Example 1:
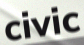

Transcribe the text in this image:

civic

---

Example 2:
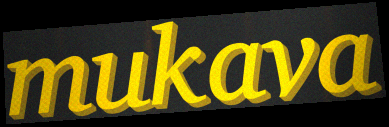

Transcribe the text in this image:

mukava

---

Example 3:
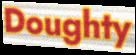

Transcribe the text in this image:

Doughty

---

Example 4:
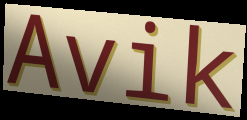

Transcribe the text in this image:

Avik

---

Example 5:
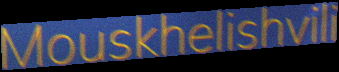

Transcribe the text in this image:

Mouskhelishvili